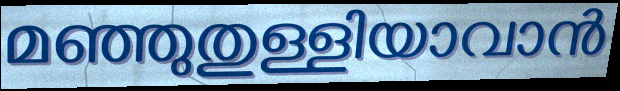
മഞ്ഞുതുള്ളിയാവാൻ